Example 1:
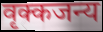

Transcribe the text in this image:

वृक्कजन्य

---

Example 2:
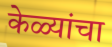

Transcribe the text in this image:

केळ्यांचा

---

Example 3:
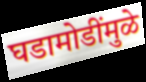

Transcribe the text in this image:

घडामोडींमुळे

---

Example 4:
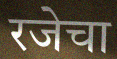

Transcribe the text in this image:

रजेचा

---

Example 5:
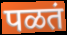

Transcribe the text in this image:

पळतं